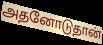
அதனோடுதான்